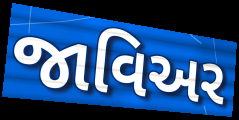
જાવિઅર